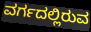
ವರ್ಗದಲ್ಲಿರುವ